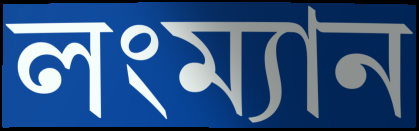
লংম্যান